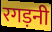
रगड़नी